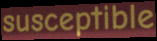
susceptible